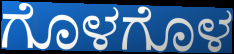
ಗೊಳಗೊಳ